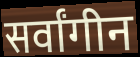
सर्वांगीन